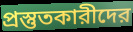
প্রস্তুতকারীদের